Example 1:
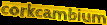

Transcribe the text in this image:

corkcambium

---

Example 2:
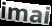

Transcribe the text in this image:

imai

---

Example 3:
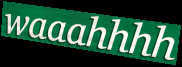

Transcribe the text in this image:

waaahhhh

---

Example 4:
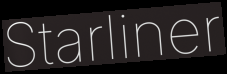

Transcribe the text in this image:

Starliner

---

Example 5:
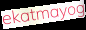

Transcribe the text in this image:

ekatmayog